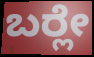
ಬರ್‍ಲೇ